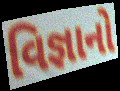
વિજ્ઞાનો